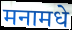
मनामधे